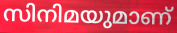
സിനിമയുമാണ്